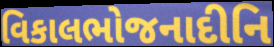
વિકાલભોજનાદીનિ